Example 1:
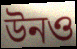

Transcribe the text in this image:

উনও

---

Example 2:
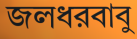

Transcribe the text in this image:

জলধরবাবু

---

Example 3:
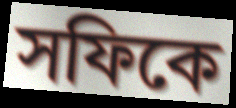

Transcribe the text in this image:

সফিকে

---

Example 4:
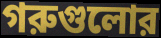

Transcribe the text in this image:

গরুগুলোর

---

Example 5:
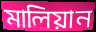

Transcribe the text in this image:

মালিয়ান